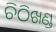
ଚିଠିଖଣ୍ଡ